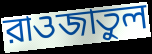
রাওজাতুল